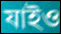
যাইও